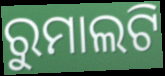
ରୁମାଲଟି